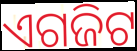
ଏଗଜିଟ